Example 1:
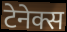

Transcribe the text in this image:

टेनेक्स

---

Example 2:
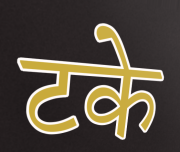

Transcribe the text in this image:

टके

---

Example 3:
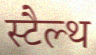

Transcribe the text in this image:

स्टैल्थ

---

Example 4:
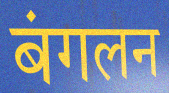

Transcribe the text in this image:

बंगलन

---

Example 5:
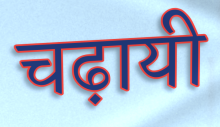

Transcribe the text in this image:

चढ़ायी